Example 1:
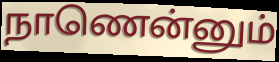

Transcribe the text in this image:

நாணென்னும்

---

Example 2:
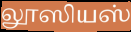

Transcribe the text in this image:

லூஸியஸ்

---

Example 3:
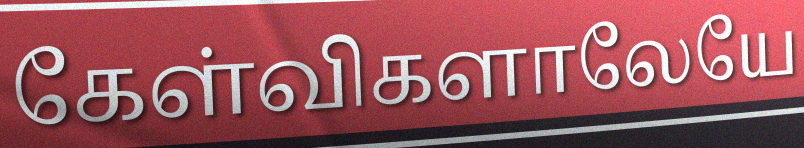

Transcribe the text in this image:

கேள்விகளாலேயே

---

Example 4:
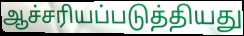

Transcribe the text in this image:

ஆச்சரியப்படுத்தியது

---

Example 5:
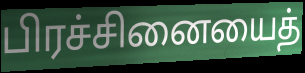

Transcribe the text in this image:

பிரச்சினையைத்